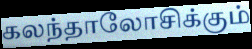
கலந்தாலோசிக்கும்